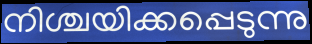
നിശ്ചയിക്കപ്പെടുന്നു